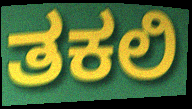
ತಕಲಿ